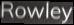
Rowley